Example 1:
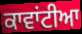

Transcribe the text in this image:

ਕਾਵਾਂਟੀਆ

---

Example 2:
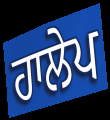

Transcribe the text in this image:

ਹਾਲੇਪ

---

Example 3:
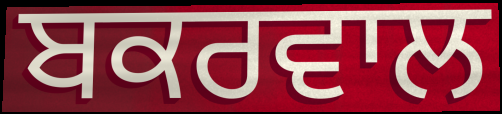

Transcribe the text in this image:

ਬਕਰਵਾਲ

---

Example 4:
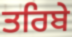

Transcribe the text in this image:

ਤਰਿਬੇ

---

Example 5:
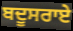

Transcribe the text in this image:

ਬਦੂਸਰਾਏ